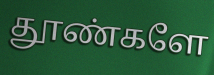
தூண்களே